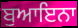
ਬੁਆਇਨਾ